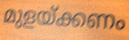
മുളയ്ക്കണം